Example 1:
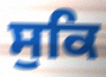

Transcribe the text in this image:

ਸੁਕਿ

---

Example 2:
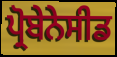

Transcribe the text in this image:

ਪ੍ਰੋਬੇਨੇਸੀਡ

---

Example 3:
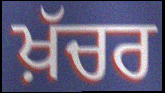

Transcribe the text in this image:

ਖ਼ੱਚਰ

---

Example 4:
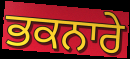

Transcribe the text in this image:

ਭਕਨਾਰੇ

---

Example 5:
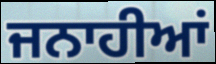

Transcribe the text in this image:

ਜਨਾਹੀਆਂ